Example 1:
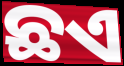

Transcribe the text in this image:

ଛଏ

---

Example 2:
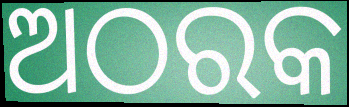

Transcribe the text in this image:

ଅଠରକ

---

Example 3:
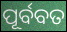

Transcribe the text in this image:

ପୂର୍ବବତ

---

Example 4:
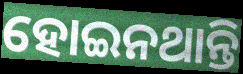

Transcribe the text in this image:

ହୋଇନଥାନ୍ତି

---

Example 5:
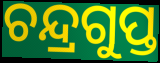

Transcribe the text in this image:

ଚନ୍ଦ୍ରଗୁପ୍ତ